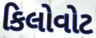
કિલોવોટ